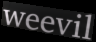
weevil